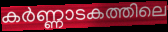
കർണ്ണാടകത്തിലെ